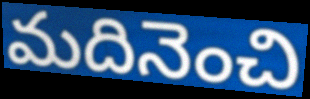
మదినెంచి